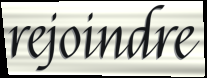
rejoindre